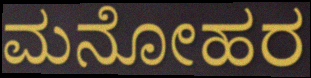
ಮನೋಹರ